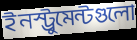
ইনস্ট্রুমেন্টগুলো